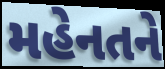
મહેનતને